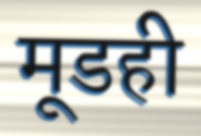
मूडही